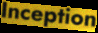
Inception